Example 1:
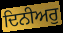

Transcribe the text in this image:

ਦਿਨੀਅਰੁ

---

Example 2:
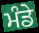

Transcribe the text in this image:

ਮੰਡੇ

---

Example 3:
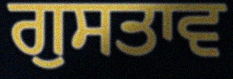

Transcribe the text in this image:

ਗੁਸਤਾਵ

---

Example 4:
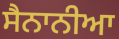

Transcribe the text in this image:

ਸੈਨਾਨੀਆ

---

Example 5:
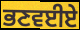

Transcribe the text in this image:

ਭਣਵਈਏ